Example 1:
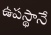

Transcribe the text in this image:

ఉపస్థానే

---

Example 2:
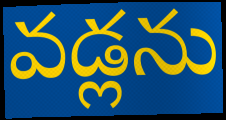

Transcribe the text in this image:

వడ్లను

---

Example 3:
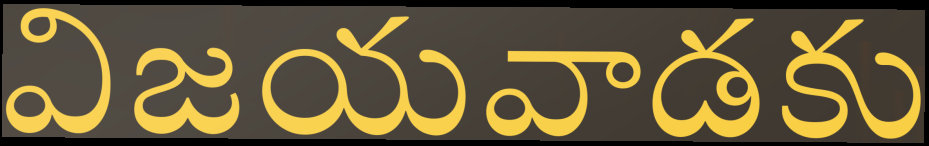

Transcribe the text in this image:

విజయవాడకు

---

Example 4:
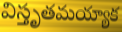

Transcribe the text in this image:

విస్తృతమయ్యాక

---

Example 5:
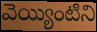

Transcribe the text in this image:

వెయ్యింటిని